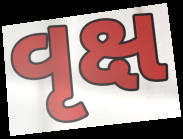
વૃક્ષ